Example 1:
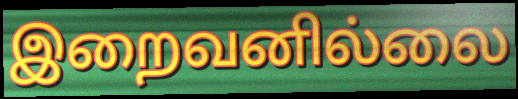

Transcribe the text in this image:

இறைவனில்லை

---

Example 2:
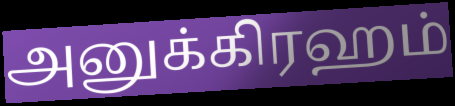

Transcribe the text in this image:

அனுக்கிரஹம்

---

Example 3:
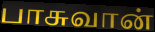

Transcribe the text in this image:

பாசுவான்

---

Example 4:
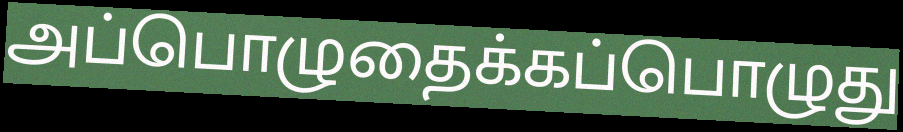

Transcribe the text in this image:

அப்பொழுதைக்கப்பொழுது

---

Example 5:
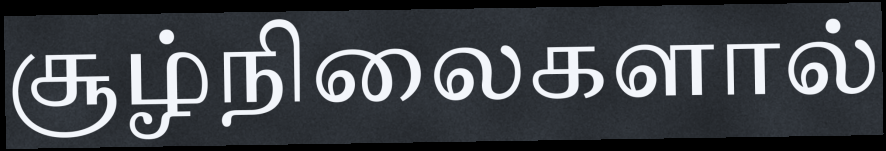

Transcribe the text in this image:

சூழ்நிலைகளால்